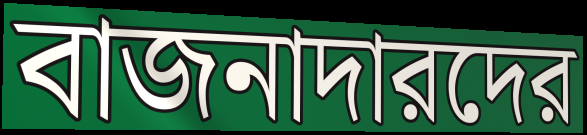
বাজনাদারদের